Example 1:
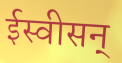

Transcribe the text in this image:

ईस्वीसन्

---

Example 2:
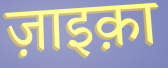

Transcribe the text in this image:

ज़ाइक़ा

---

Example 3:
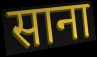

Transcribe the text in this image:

साना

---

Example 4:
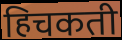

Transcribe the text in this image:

हिचकती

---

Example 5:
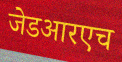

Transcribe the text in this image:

जेडआरएच